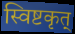
स्विष्टकृत्